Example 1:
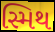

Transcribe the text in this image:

સ્મિથ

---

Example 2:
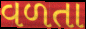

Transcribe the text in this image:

વળતા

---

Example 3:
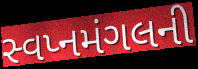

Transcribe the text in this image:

સ્વપ્નમંગલની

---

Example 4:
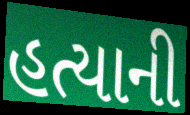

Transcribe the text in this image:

હત્યાની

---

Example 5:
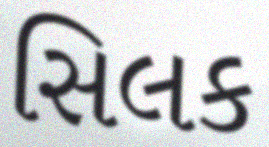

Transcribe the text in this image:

સિલક